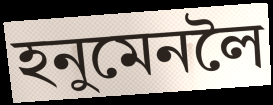
হনুমেনলৈ